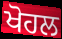
ਖੋਹਲ